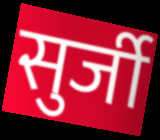
सुर्जी